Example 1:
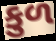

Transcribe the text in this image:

કુળ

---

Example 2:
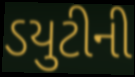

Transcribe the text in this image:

ડયુટીની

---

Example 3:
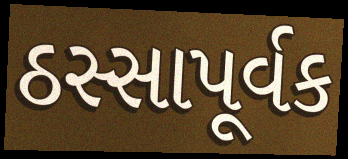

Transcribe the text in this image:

ઠસ્સાપૂર્વક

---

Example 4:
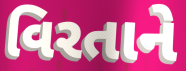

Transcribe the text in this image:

વિરતાને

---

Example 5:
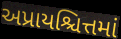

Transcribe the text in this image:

અપ્રાયશ્ચિત્તમાં